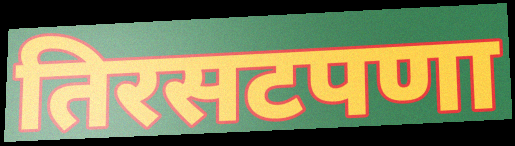
तिरसटपणा